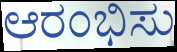
ಆರಂಭಿಸು